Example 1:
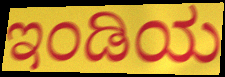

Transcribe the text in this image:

ಇಂಡಿಯ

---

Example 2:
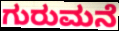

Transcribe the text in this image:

ಗುರುಮನೆ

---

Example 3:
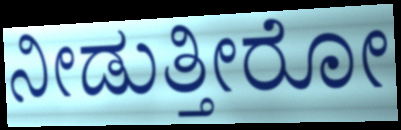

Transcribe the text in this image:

ನೀಡುತ್ತೀರೋ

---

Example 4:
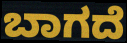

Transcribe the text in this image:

ಬಾಗದೆ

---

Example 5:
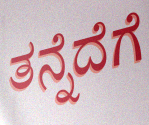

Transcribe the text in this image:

ತನ್ನೆದೆಗೆ